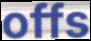
offs